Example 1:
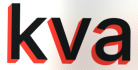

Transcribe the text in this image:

kva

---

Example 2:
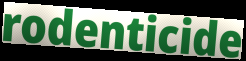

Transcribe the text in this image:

rodenticide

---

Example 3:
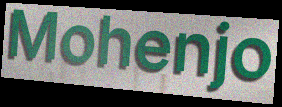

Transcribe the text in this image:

Mohenjo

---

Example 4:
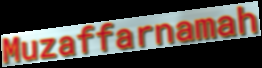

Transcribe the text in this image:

Muzaffarnamah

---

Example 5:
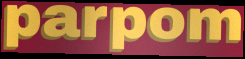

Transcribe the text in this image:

parpom